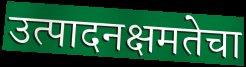
उत्पादनक्षमतेचा